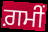
ਗ਼ਮੀਂ